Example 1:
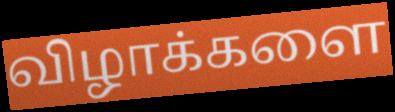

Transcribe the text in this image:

விழாக்களை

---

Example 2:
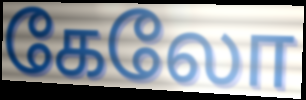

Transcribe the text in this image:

கேலோ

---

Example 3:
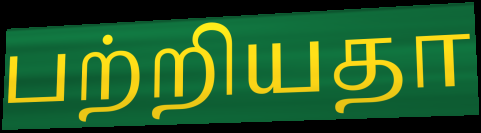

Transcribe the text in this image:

பற்றியதா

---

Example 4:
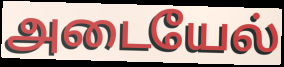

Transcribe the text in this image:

அடையேல்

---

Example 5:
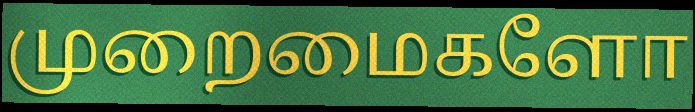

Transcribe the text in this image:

முறைமைகளோ